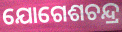
ଯୋଗେଶଚନ୍ଦ୍ର